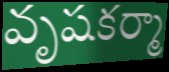
వృషకర్మా